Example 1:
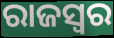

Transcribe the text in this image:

ରାଜସ୍ୱର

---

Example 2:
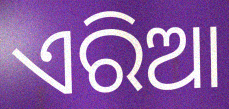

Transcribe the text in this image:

ଏରିଆ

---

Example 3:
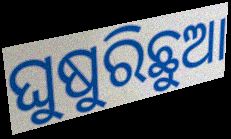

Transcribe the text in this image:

ଘୁଷୁରିଛୁଆ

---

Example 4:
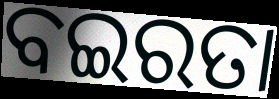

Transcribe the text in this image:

ବଇରତା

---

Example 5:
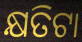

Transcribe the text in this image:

କ୍ଷତିଟା